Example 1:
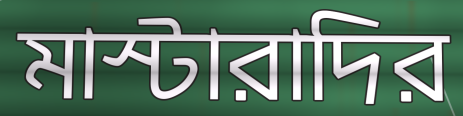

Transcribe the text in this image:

মাস্টারাদির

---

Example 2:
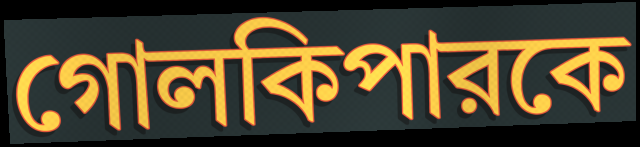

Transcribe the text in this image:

গোলকিপারকে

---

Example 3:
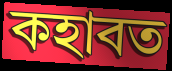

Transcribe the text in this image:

কহাবত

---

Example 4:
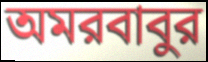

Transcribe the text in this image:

অমরবাবুর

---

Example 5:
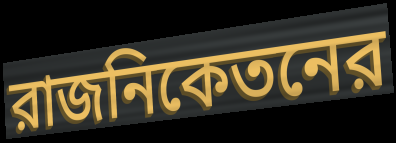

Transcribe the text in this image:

রাজনিকেতনের